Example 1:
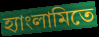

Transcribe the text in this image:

হ্যাংলামিতে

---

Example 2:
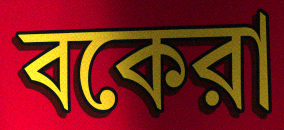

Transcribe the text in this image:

বকেরা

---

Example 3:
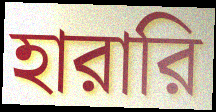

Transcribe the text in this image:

হারারি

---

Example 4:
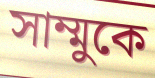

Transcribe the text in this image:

সাম্মুকে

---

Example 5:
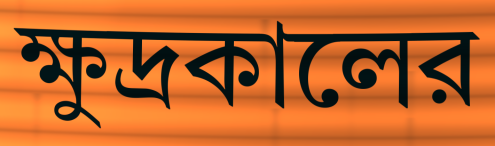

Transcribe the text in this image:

ক্ষুদ্রকালের